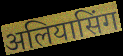
अलियासिंग